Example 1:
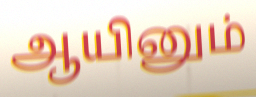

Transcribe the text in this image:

ஆயினும்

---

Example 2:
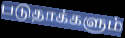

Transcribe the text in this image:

படுதாக்களும்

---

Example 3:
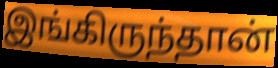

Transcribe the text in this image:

இங்கிருந்தான்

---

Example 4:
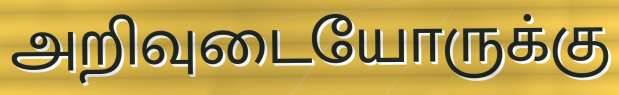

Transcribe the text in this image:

அறிவுடையோருக்கு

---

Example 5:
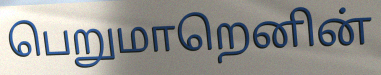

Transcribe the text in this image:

பெறுமாறெனின்